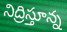
నిద్రిస్తూన్న